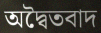
অদ্বৈতবাদ